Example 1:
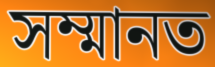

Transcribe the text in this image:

সম্মানত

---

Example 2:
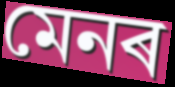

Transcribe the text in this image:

মেনৰ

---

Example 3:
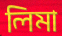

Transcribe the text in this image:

লিমা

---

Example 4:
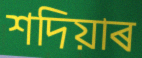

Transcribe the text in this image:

শদিয়াৰ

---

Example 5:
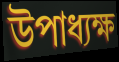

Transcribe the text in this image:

উপাধ্যক্ষ